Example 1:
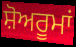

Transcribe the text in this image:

ਸ਼ੋਅਰੂਮਾਂ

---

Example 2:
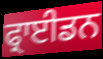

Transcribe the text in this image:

ਫ੍ਰਾਈਡਨ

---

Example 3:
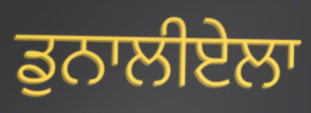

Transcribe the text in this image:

ਡੁਨਾਲੀਏਲਾ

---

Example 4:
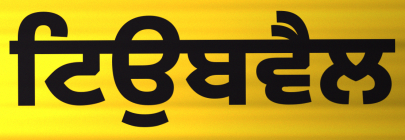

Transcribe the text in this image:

ਟਿਉਬਵੈਲ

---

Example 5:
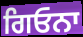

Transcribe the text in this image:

ਗਿਓਨਾ